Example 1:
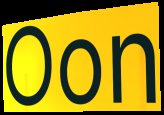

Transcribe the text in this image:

Oon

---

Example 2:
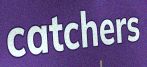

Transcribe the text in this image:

catchers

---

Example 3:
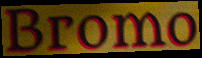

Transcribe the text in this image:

Bromo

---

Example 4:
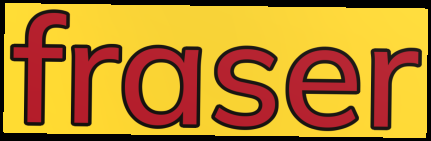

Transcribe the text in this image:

fraser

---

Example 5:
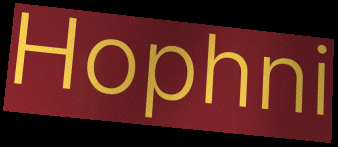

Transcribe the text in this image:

Hophni